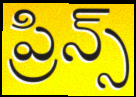
ప్రిన్స్